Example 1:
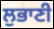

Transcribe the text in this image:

ਲੁਭਾਣੀ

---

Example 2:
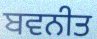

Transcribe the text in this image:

ਬਵਨੀਤ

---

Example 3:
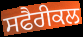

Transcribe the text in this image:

ਸਫੈਰੀਕਲ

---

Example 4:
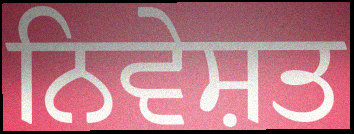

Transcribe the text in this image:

ਨਿਵੇਸ਼ਤ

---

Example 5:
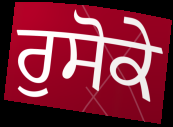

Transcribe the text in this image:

ਰੁਸੋਕੇ